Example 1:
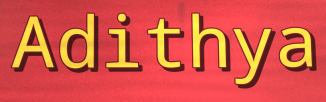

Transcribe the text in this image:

Adithya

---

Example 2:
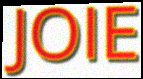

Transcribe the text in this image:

JOIE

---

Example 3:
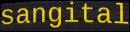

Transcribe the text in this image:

sangital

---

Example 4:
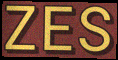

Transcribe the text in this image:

ZES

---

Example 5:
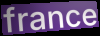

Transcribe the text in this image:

france